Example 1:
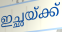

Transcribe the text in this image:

ഇച്ഛയ്ക്ക്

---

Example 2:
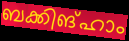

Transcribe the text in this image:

ബക്കിങ്ഹാം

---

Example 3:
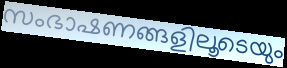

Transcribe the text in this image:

സംഭാഷണങ്ങളിലൂടെയും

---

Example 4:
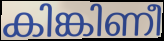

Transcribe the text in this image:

കിങ്കിണീ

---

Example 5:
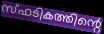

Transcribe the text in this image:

സ്ഫടികത്തിന്റെ